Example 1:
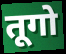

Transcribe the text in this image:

तूगो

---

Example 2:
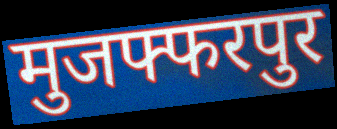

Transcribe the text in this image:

मुजफ्फरपुर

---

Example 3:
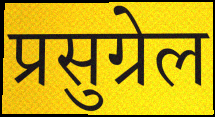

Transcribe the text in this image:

प्रसुग्रेल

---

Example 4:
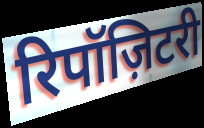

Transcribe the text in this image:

रिपॉज़िटरी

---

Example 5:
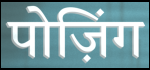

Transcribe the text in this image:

पोज़िंग